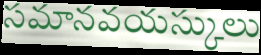
సమానవయస్కులు